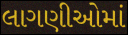
લાગણીઓમાં